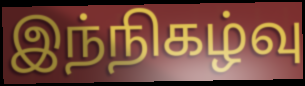
இந்நிகழ்வு